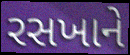
રસખાને